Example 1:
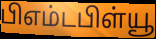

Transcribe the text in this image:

பிஎம்டபிள்யூ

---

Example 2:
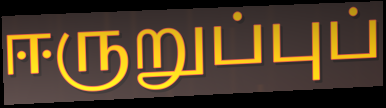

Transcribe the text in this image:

ஈருறுப்புப்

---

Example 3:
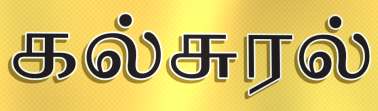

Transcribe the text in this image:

கல்சுரல்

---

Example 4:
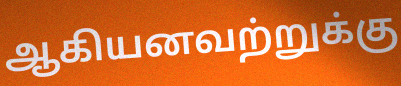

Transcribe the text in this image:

ஆகியனவற்றுக்கு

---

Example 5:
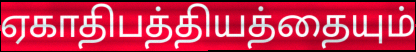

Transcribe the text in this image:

ஏகாதிபத்தியத்தையும்